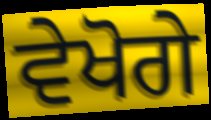
ਵੇਖੋਗੇ